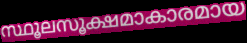
സ്ഥൂലസൂക്ഷമാകാരമായ